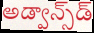
అడ్వాన్స్‌డ్